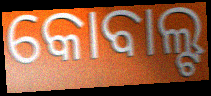
କୋବାଲ୍ଟ